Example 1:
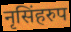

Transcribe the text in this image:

नृसिंहरुप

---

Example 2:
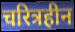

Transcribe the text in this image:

चरित्रहीन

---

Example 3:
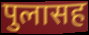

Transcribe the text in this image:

पुलासह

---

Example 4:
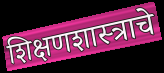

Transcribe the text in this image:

शिक्षणशास्त्राचे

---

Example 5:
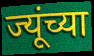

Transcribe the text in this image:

ज्यूंच्या